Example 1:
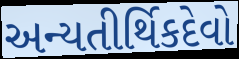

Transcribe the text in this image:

અન્યતીર્થિકદેવો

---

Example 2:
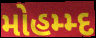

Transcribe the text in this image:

મોહમ્મ્દ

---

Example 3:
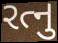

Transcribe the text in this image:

રત્નુ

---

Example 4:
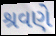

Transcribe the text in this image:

શ્રવણે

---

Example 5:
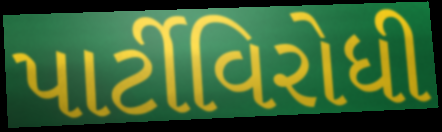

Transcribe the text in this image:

પાર્ટીવિરોધી